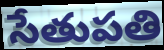
సేతుపతి